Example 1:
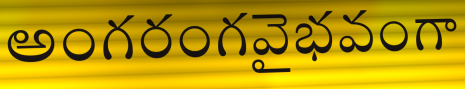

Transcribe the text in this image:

అంగరంగవైభవంగా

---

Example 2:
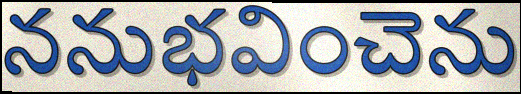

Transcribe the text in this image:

ననుభవించెను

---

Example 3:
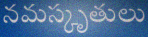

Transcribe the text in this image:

నమస్కృతులు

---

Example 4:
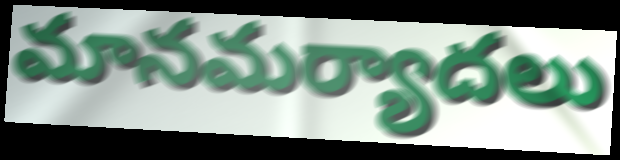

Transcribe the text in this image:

మానమర్యాదలు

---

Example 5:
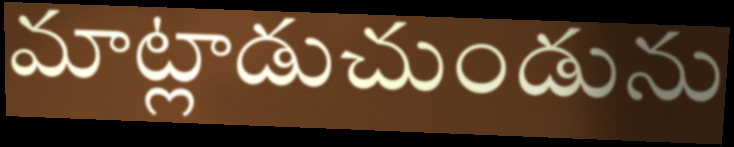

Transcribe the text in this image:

మాట్లాడుచుండును